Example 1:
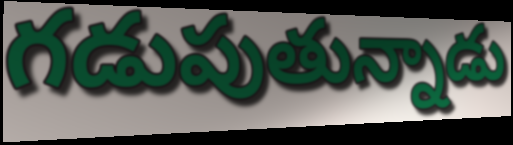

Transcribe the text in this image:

గడుపుతున్నాడు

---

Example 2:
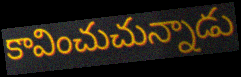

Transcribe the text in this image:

కావించుచున్నాడు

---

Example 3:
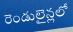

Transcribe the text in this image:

రెండులైన్లలో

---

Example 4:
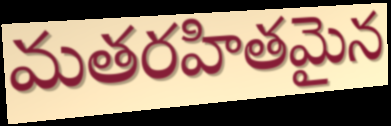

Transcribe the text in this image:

మతరహితమైన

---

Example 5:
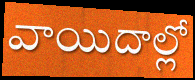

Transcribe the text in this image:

వాయిదాల్లో